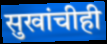
सुखांचीही